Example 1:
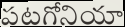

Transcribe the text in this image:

పటగోనియా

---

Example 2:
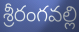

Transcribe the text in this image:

శ్రీరంగవల్లి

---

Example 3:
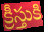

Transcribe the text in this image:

క్రీస్తుకి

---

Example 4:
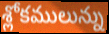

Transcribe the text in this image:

శ్లోకములున్ను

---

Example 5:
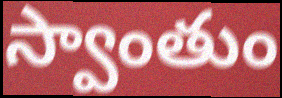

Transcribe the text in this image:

స్వాంతుం